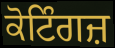
ਕੋਟਿੰਗਜ਼